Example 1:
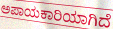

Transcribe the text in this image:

ಅಪಾಯಕಾರಿಯಾಗಿದೆ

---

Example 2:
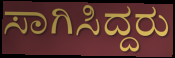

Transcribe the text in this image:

ಸಾಗಿಸಿದ್ದರು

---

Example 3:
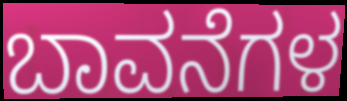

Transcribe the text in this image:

ಬಾವನೆಗಳ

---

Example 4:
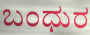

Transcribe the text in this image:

ಬಂಧುರ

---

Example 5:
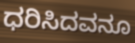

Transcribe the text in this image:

ಧರಿಸಿದವನೂ